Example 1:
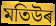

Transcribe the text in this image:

মতিউৰ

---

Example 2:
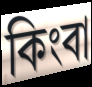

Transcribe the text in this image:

কিংবা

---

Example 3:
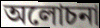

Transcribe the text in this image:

অলোচনা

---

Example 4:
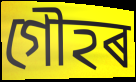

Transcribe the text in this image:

গৌহৰ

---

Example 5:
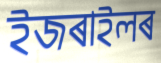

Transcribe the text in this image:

ইজৰাইলৰ